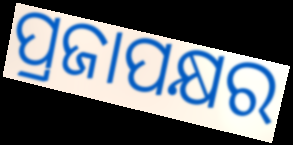
ପ୍ରଜାପକ୍ଷର